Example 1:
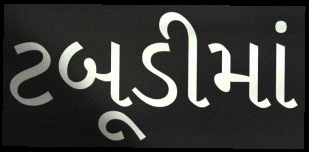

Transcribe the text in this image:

ટબૂડીમાં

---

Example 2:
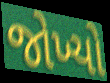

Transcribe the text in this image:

જોખ્યો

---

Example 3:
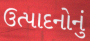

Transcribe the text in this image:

ઉત્પાદનોનું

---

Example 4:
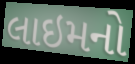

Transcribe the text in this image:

લાઇમનો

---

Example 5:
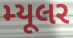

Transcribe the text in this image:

મ્યૂલર